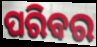
ପରିବର